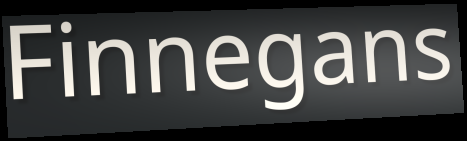
Finnegans